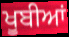
ਖੂਬੀਆਂ